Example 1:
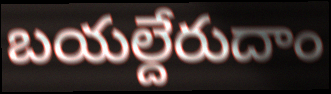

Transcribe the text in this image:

బయల్దేరుదాం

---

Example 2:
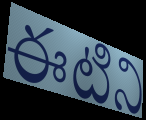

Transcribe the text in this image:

ఈటిని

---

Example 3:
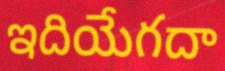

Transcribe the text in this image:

ఇదియేగదా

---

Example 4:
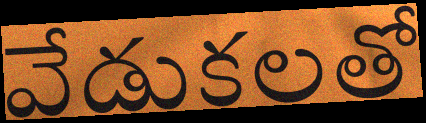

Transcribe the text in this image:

వేడుకలతో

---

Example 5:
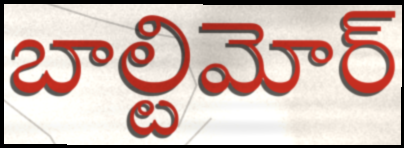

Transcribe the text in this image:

బాల్టిమోర్